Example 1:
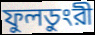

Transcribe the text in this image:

ফুলডুংরী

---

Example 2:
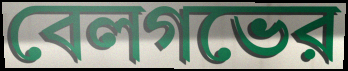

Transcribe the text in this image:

বেলগভের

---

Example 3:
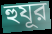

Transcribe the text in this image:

হুযূর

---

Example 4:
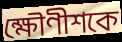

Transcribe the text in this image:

ক্ষৌণীশকে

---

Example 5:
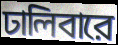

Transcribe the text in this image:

ঢালিবারে